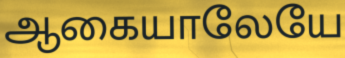
ஆகையாலேயே